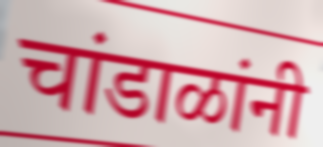
चांडाळांनी